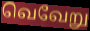
வெவேறு